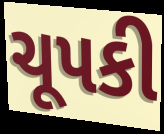
ચૂપકી